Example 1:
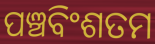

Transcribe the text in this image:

ପଞ୍ଚବିଂଶତମ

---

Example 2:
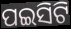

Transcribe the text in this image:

ପଇସିଟି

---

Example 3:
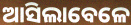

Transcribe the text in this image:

ଆସିଲାବେଳେ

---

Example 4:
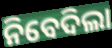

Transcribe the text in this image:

ନିବେଦିଲା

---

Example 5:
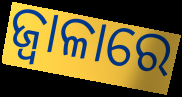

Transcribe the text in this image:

ଜ୍ଵାଳାରେ